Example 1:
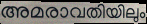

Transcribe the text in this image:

അമരാവതിയിലും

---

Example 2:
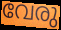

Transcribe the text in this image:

വേരു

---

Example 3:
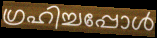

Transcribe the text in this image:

ഗ്രഹിച്ചപ്പോൾ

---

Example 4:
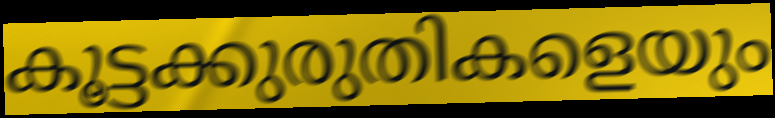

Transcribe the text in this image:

കൂട്ടക്കുരുതികളെയും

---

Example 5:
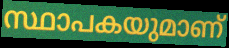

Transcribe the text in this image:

സ്ഥാപകയുമാണ്